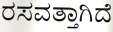
ರಸವತ್ತಾಗಿದೆ